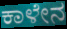
ಕಾಳೇನ